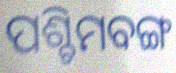
ପଶ୍ଚିମବଙ୍ଗ